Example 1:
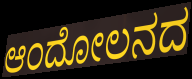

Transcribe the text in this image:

ಆಂದೋಲನದ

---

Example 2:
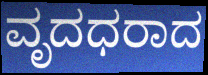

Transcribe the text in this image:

ವೃದಧರಾದ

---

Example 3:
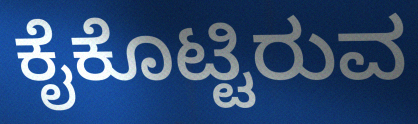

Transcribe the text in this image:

ಕೈಕೊಟ್ಟಿರುವ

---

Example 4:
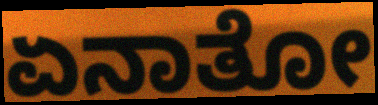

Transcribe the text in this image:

ಏನಾತೋ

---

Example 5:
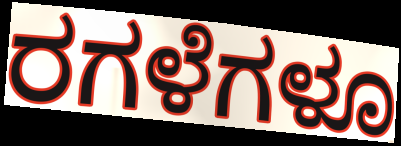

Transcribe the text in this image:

ರಗಳೆಗಳೂ